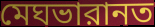
মেঘভারানত